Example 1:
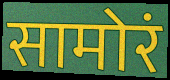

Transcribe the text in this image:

सामोरं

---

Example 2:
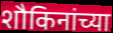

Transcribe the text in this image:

शौकिनांच्या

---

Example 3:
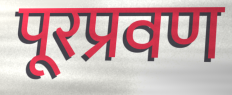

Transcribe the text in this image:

पूरप्रवण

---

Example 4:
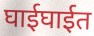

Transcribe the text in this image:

घाईघाईत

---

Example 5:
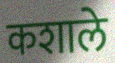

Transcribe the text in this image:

कशाले